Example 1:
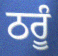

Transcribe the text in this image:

ਠਰੂੰ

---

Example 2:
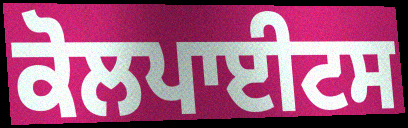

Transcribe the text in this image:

ਕੋਲਪਾਈਟਸ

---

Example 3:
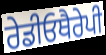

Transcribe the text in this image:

ਰੇਡੀਓਥੈਰੇਪੀ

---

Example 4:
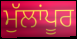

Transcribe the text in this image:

ਮੁੱਲਾਂਪੂਰ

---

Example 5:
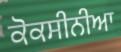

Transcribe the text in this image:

ਕੋਕਸੀਨੀਆ